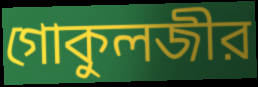
গোকুলজীর